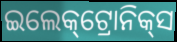
ଇଲେକ୍‌ଟ୍ରୋନିକ୍‌ସ